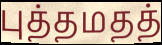
புத்தமதத்